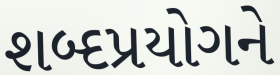
શબ્દપ્રયોગને